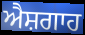
ਐਸ਼ਗਾਹ